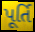
પૂર્તિ